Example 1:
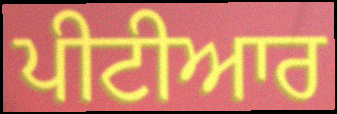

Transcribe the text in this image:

ਪੀਟੀਆਰ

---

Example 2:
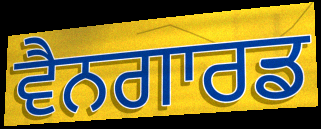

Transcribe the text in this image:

ਵੈਨਗਾਰਡ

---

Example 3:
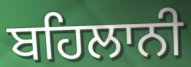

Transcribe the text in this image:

ਬਹਿਲਾਨੀ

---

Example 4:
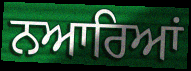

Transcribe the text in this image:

ਨਆਰਿਆਂ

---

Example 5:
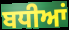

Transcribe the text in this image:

ਬਧੀਆਂ